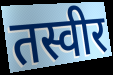
तस्वीर